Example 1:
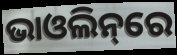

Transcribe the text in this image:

ଭାଓଲିନ୍‌ରେ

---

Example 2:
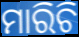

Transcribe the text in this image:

ମାରିଚି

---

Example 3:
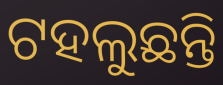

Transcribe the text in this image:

ଟହଲୁଛନ୍ତି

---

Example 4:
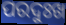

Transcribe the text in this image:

ପରଦୁଃଖ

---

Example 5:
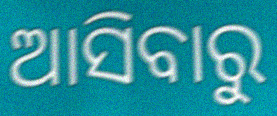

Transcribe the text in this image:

ଆସିବାରୁ